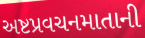
અષ્ટપ્રવચનમાતાની